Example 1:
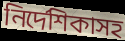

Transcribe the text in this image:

নির্দেশিকাসহ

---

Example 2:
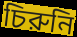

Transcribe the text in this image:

চিরুনি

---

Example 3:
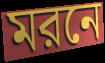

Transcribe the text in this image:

মরনে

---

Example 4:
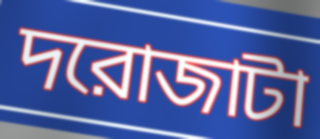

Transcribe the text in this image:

দরোজাটা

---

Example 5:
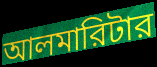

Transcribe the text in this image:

আলমারিটার